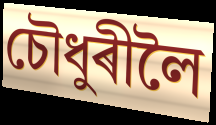
চৌধুৰীলৈ